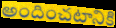
అందించటానికి